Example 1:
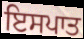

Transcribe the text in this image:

ਇਸਪਾਤ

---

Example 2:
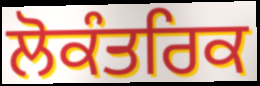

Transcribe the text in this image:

ਲੋਕੰਤਰਿਕ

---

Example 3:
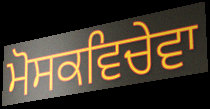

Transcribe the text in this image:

ਮੋਸਕਵਿਚੇਵਾ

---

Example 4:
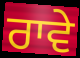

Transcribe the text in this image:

ਰਾਵੇ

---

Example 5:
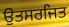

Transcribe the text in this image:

ਉਤਸਰਜਿਤ